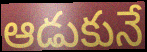
ఆడుకునే